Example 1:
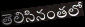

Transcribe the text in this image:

తెలిసినంతలో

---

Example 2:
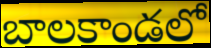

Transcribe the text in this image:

బాలకాండలో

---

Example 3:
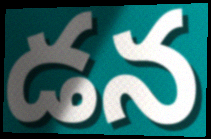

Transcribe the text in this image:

డన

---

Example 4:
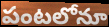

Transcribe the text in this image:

పంటలోనూ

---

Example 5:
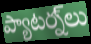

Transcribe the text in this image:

ప్యాటర్న్‌లు